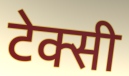
टेक्सी